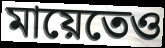
মায়েতেও